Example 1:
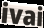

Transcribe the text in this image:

ivai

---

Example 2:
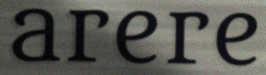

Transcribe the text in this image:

arere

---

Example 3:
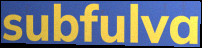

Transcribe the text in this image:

subfulva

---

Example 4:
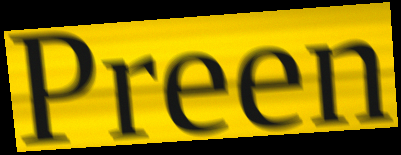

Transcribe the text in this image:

Preen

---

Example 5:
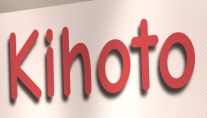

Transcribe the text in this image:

Kihoto